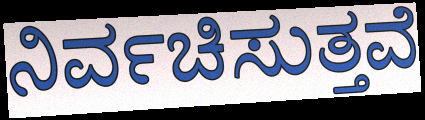
ನಿರ್ವಚಿಸುತ್ತವೆ